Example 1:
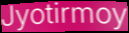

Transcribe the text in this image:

Jyotirmoy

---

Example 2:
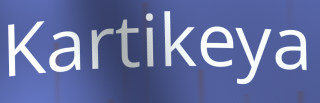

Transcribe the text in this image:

Kartikeya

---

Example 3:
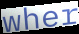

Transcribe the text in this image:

wher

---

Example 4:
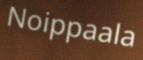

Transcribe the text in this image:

Noippaala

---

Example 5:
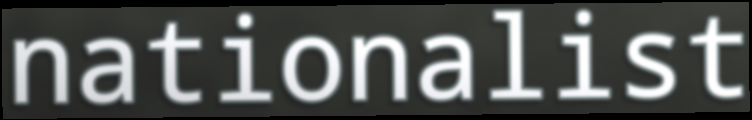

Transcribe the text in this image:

nationalist